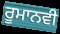
ਰੂਮਾਨਵੀ